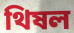
থিষল